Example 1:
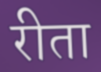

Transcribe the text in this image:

रीता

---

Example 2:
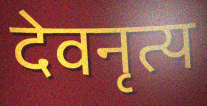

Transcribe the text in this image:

देवनृत्य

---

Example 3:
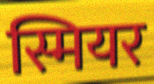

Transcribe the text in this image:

स्मियर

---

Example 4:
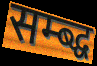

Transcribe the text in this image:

सम्ब्द्ध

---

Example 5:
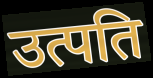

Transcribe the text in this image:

उत्पति